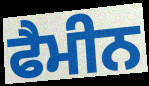
ਫੈਮੀਨ